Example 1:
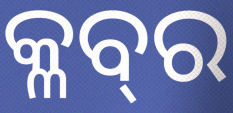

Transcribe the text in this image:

କ୍ଳବ୍‍ର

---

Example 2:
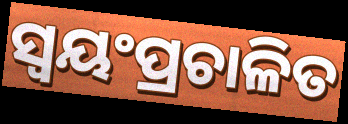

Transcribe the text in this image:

ସ୍ୱୟଂପ୍ରଚାଳିତ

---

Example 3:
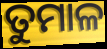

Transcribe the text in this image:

ତୁମାଳ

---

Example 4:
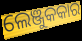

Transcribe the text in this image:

ଲେଞ୍ଜୁକକାର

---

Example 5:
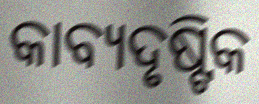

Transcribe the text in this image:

କାବ୍ୟଦୃଷ୍ଟିକ